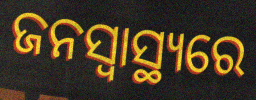
ଜନସ୍ଵାସ୍ଥ୍ୟରେ